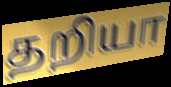
தறியா